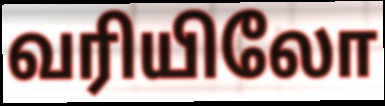
வரியிலோ